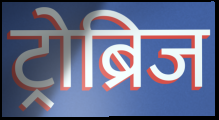
ट्रोब्रिज